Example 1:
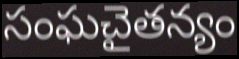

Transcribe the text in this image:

సంఘచైతన్యం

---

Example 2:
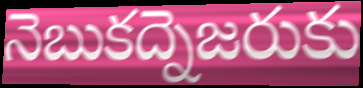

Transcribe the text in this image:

నెబుకద్నెజరుకు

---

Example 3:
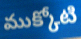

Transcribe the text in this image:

ముక్కోటి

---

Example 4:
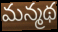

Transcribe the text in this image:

మన్మథ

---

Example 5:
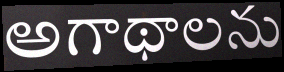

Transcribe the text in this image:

అగాథాలను